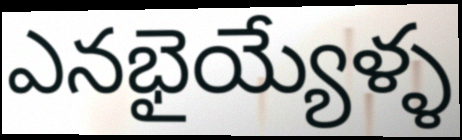
ఎనభైయ్యేళ్ళ